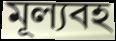
মূল্যবহ